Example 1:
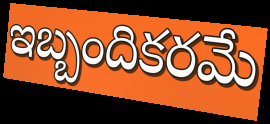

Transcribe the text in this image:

ఇబ్బందికరమే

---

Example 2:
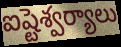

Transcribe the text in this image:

ఐష్టెశ్వర్యాలు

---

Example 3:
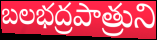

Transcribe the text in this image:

బలభద్రపాత్రుని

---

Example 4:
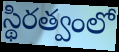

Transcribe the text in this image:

స్థిరత్వంలో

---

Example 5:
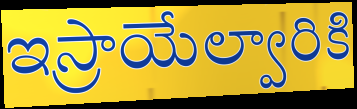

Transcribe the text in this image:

ఇస్రాయేల్వారికి